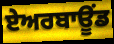
ਏਅਰਬਾਊਂਡ